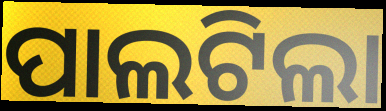
ପାଲଟିଲା